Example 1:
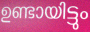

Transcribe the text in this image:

ഉണ്ടായിട്ടും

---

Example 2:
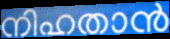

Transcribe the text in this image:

നിഹതാൻ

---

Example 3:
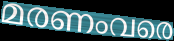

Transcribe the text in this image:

മരണംവരെ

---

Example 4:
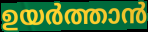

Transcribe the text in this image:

ഉയർത്താൻ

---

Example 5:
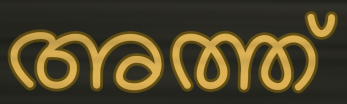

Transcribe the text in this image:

അത്ത്